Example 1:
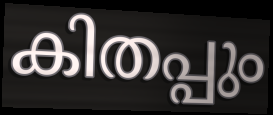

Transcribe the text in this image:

കിതപ്പും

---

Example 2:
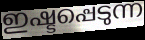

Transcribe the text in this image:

ഇഷ്ടപ്പെടുന്ന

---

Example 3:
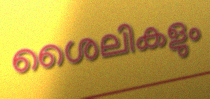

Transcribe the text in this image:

ശൈലികളും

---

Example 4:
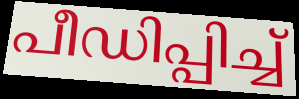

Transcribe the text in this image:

പീഡിപ്പിച്ച്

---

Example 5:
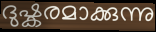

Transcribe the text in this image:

ദുഷ്കരമാക്കുന്നു